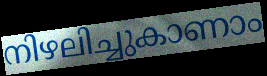
നിഴലിച്ചുകാണാം